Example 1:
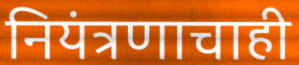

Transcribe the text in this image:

नियंत्रणाचाही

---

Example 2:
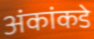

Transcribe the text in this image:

अंकांकडे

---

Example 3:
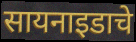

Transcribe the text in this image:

सायनाइडाचे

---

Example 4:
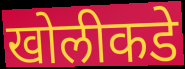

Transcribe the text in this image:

खोलीकडे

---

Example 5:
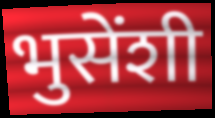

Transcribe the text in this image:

भुसेंशी